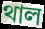
থাল